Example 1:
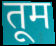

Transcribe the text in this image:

तूम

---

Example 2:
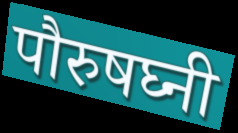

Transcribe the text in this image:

पौरुषघ्नी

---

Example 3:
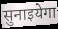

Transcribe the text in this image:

सुनाइयेगा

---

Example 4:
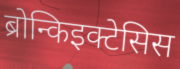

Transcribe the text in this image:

ब्रोन्किइक्टेसिस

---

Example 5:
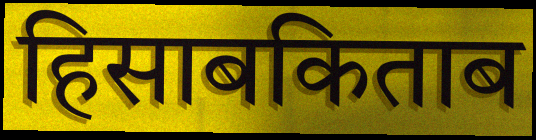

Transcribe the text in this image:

हिसाबकिताब